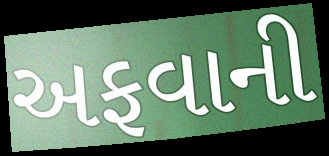
અફવાની